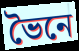
ভৈনে